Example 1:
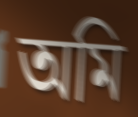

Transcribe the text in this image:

অমি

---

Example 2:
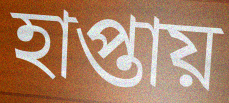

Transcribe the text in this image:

হাপ্তায়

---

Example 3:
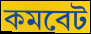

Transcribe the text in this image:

কমবেট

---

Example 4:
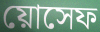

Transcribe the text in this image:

য়োসেফ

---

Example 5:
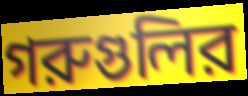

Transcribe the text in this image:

গরুগুলির